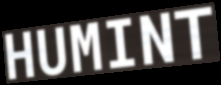
HUMINT